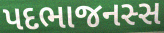
પદભાજનસ્સ